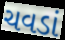
ચવડાં